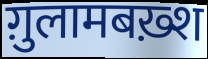
ग़ुलामबख़्श